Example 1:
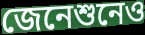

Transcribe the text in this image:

জেনেশুনেও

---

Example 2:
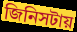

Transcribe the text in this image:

জিনিসটায়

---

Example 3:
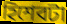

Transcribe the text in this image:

হিশেবটা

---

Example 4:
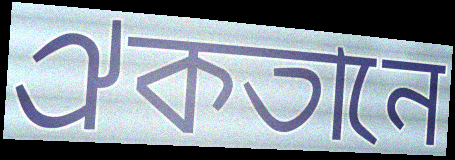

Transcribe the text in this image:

ঐকতানে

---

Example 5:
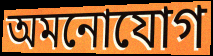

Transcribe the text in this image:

অমনোযোগ